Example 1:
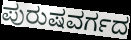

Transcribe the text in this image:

ಪುರುಷವರ್ಗದ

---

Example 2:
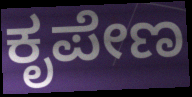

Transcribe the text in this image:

ಕೃಪೇಣ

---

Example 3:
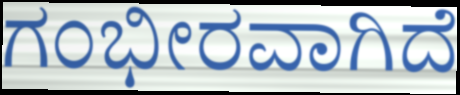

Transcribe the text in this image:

ಗಂಭೀರವಾಗಿದೆ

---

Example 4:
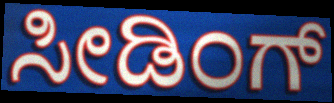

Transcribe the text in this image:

ಸೀಡಿಂಗ್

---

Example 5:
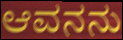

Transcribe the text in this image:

ಆವನನು